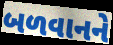
બળવાનને